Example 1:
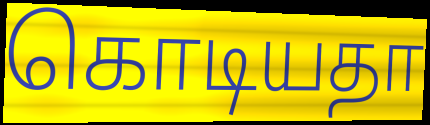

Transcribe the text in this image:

கொடியதா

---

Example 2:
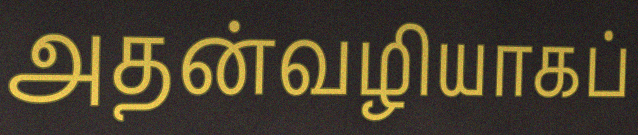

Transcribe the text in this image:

அதன்வழியாகப்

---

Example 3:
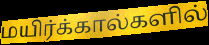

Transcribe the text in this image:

மயிர்க்கால்களில்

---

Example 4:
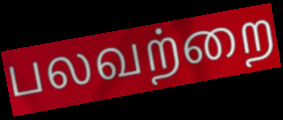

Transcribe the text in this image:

பலவற்றை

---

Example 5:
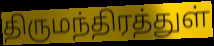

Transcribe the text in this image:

திருமந்திரத்துள்